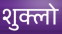
शुक्लो